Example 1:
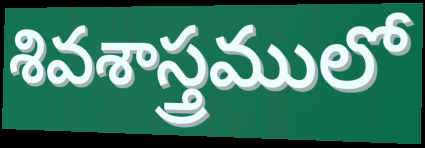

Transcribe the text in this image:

శివశాస్త్రములో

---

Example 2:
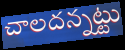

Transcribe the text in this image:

చాలదన్నట్టు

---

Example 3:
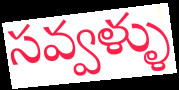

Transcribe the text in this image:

సవ్వళ్ళు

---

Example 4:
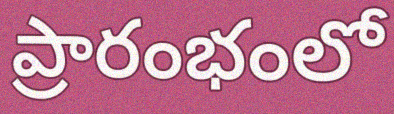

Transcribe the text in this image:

ప్రారంభంలో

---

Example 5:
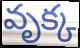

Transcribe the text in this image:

వృక్క